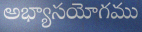
అభ్యాసయోగము